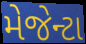
મેજેન્ટા